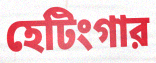
হেটিংগার